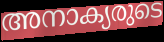
അനാക്യരുടെ